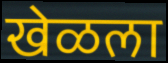
खेळला